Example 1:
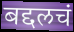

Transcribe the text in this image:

बद्दलचं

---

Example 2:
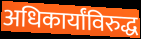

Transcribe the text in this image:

अधिकार्यांविरुद्ध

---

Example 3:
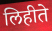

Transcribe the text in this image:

लिहीते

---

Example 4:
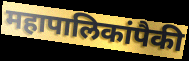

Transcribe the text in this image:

महापालिकांपैकी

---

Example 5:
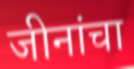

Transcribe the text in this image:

जीनांचा